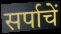
सर्पाचें